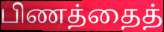
பிணத்தைத்